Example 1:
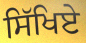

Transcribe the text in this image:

ਸਿੱਖਿਏ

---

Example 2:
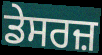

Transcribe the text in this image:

ਡੇਸਰਜ਼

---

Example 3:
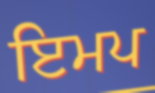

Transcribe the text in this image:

ਇਮਪ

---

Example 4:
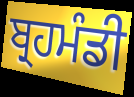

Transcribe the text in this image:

ਬ੍ਰਹਮੰਡੀ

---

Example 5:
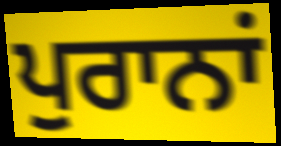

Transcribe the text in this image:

ਪੁਰਾਨਾਂ